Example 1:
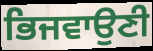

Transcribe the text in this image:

ਭਿਜਵਾਉਣੀ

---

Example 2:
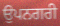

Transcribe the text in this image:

ਉਪਨਗਰੀ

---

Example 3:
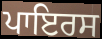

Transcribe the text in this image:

ਪਾਇਰਸ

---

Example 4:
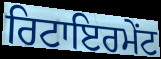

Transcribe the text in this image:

ਰਿਟਾਇਰਮੇਂਟ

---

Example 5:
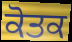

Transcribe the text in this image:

ਕੋਤਕ